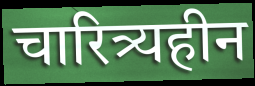
चारित्र्यहीन